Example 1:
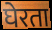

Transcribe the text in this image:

घेरता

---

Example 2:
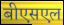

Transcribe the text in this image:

बीएसएल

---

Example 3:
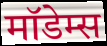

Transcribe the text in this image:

मॉडेम्स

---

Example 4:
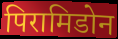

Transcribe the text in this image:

पिरामिडोन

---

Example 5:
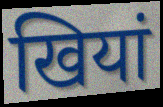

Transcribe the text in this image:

खियां